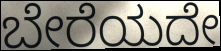
ಬೇರೆಯದೇ